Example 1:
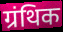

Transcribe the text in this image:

ग्रंथिक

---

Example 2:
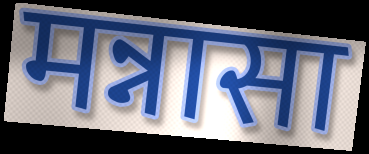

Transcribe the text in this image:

मन्नासा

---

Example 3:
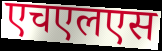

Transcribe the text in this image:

एचएलएस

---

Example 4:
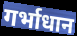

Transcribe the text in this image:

गर्भाधान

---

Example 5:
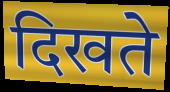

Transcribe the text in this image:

दिखते